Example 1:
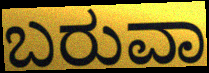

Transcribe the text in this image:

ಬರುವಾ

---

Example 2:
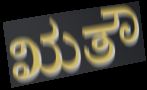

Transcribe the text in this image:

ಋತೌ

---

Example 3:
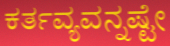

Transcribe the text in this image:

ಕರ್ತವ್ಯವನ್ನಷ್ಟೇ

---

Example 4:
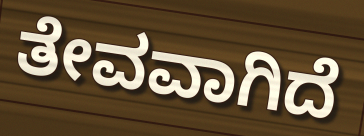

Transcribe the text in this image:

ತೇವವಾಗಿದೆ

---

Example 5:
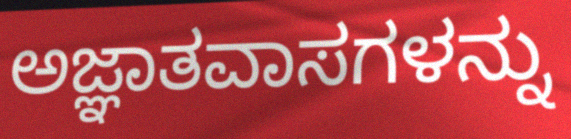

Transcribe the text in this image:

ಅಜ್ಞಾತವಾಸಗಳನ್ನು